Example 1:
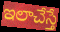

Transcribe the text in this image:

ఇలాచేస్తే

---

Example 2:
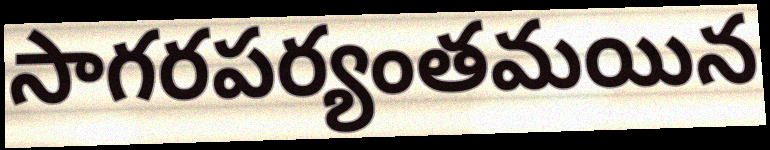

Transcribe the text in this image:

సాగరపర్యంతమయిన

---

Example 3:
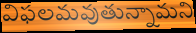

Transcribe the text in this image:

విఫలమవుతున్నామని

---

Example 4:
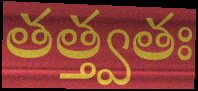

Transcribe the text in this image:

తత్త్వతః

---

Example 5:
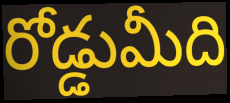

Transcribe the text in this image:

రోడ్డుమీది